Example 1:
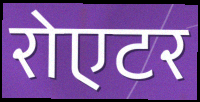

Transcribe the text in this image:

रोएटर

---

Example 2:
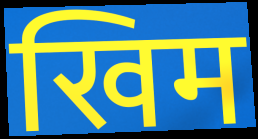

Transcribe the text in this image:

खिम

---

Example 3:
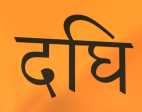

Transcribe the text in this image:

दघि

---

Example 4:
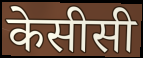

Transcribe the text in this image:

केसीसी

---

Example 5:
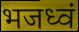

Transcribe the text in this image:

भजध्वं